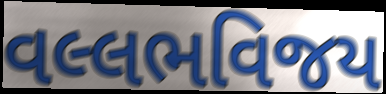
વલ્લભવિજય